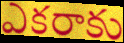
ఎకరాకు